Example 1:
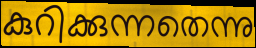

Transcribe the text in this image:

കുറിക്കുന്നതെന്നു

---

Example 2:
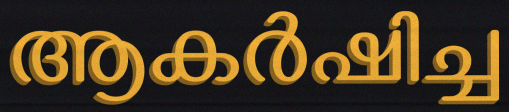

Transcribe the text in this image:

ആകർഷിച്ച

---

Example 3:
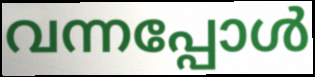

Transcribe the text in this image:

വന്നപ്പോൾ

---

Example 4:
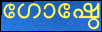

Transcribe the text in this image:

ഗോഷ്ഠേ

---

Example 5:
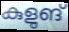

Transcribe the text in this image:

കുളുങ്